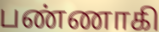
பண்ணாகி